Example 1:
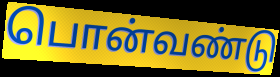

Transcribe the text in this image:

பொன்வண்டு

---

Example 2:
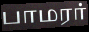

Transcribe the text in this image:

பாமரர்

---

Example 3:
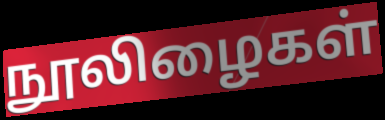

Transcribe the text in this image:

நூலிழைகள்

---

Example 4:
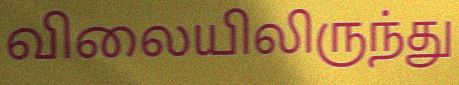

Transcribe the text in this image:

விலையிலிருந்து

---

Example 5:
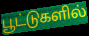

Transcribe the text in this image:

பூட்டுகளில்